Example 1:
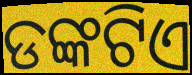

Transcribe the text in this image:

ଡଙ୍କଟିଏ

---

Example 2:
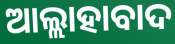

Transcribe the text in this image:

ଆଲ୍ଲାହାବାଦ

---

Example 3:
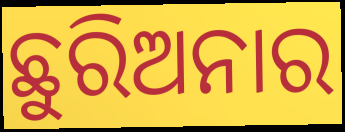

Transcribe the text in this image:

ଛୁରିଅନାର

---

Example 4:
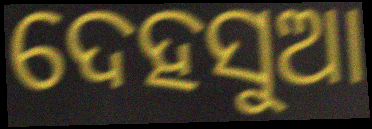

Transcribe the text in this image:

ଦେହସୁଆ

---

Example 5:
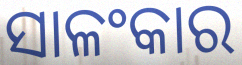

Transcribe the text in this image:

ସାଳଂକାର